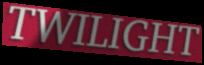
TWILIGHT